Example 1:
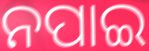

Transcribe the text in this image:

ନପାଇ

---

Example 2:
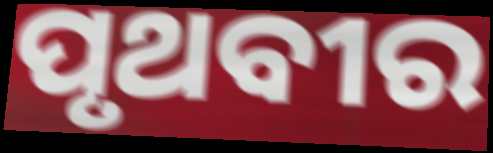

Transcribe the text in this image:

ପୃଥବୀର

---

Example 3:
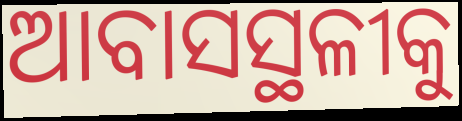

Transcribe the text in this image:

ଆବାସସ୍ଥଳୀକୁ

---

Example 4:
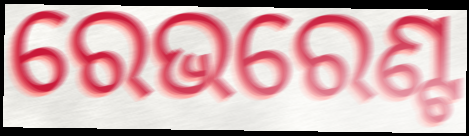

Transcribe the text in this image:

ରେଭରେଣ୍ଟ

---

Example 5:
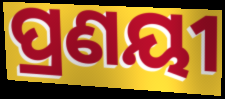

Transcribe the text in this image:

ପ୍ରଣୟୀ